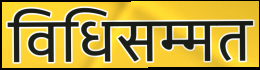
विधिसम्मत